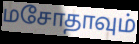
மசோதாவும்